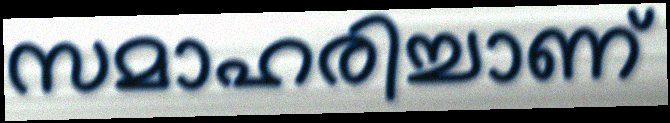
സമാഹരിച്ചാണ്